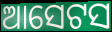
ଆସେଟସ